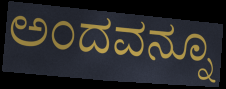
ಅಂದವನ್ನೂ